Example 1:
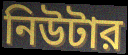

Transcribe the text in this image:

নিউটার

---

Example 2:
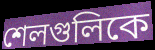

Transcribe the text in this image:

শেলগুলিকে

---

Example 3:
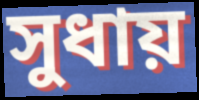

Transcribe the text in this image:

সুধায়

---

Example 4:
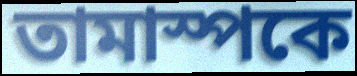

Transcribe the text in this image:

তামাস্পকে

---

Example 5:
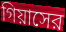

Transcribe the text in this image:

গিয়াসের